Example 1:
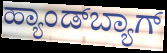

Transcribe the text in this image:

ಹ್ಯಾಂಡ್‌ಬ್ಯಾಗ್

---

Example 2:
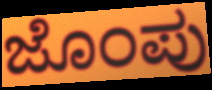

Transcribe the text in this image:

ಜೊಂಪು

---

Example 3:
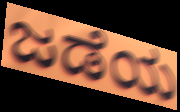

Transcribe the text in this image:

ಜಡೆಯ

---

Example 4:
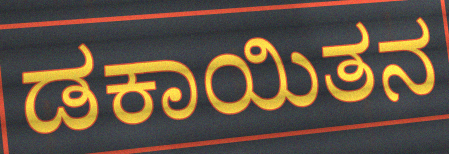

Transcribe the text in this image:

ಡಕಾಯಿತನ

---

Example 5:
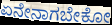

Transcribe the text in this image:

ಏನೇನಾಗಬೇಕೋ